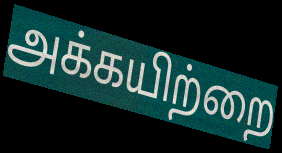
அக்கயிற்றை